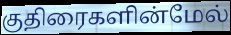
குதிரைகளின்மேல்